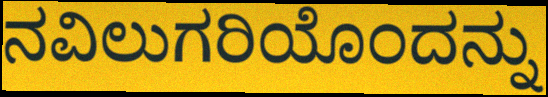
ನವಿಲುಗರಿಯೊಂದನ್ನು